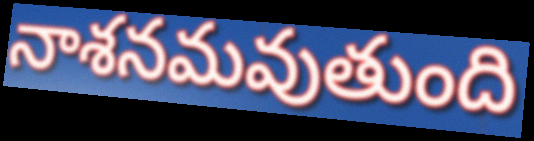
నాశనమవుతుంది